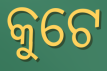
କୁଟେ